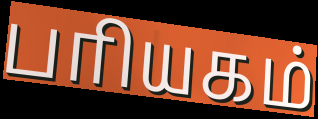
பரியகம்